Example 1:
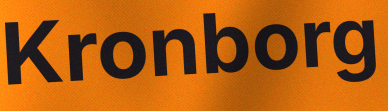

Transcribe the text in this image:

Kronborg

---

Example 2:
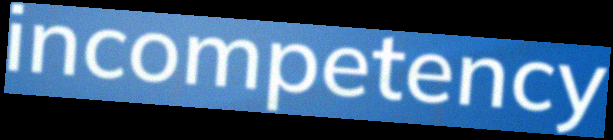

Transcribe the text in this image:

incompetency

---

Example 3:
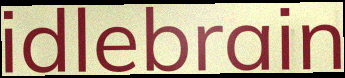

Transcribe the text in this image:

idlebrain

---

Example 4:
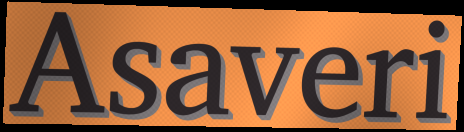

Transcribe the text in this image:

Asaveri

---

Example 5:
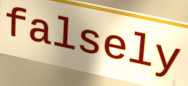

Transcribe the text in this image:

falsely